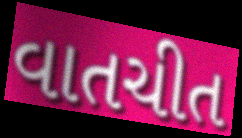
વાતચીત